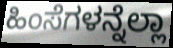
ಹಿಂಸೆಗಳನ್ನೆಲ್ಲಾ